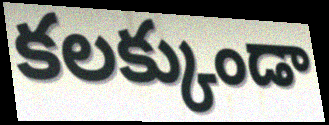
కలక్కుండా